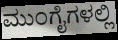
ಮುಂಗೈಗಳಲ್ಲಿ